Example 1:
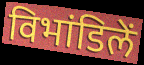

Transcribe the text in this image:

विभांडिलें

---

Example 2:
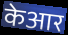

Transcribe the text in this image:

केआर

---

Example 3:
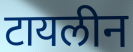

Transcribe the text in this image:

टायलीन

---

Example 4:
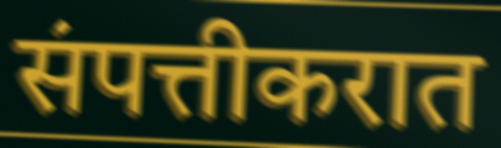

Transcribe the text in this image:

संपत्तीकरात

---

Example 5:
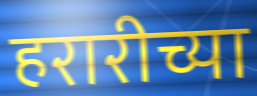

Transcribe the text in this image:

हरारीच्या